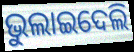
ଭୁଲାଇଦେଲି